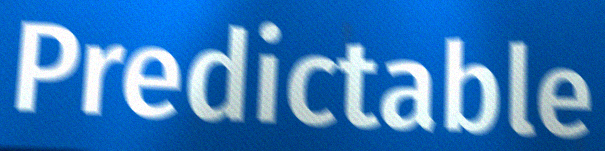
Predictable